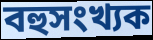
বহুসংখ্যক